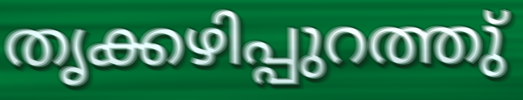
തൃക്കഴിപ്പുറത്തു്